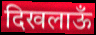
दिखलाऊँ